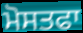
ਮੋਸਤਫਾ